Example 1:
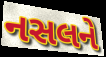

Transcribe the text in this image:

નસલને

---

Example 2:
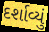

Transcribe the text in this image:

દર્શાવ્યું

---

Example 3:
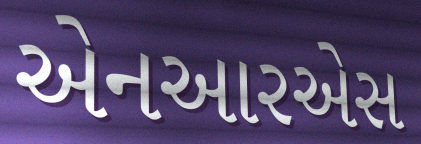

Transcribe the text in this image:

એનઆરએસ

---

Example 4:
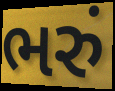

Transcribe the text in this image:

ભરું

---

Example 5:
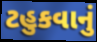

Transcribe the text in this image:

ટહુકવાનું